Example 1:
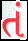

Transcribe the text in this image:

તં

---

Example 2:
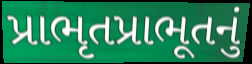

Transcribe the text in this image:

પ્રાભૃતપ્રાભૂતનું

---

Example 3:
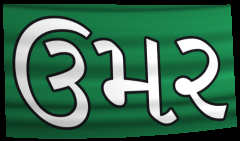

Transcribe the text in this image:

ઉમર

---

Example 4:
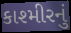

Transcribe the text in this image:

કાશ્મીરનું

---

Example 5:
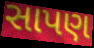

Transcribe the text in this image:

સાપણ